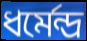
ধৰ্মেন্দ্ৰ